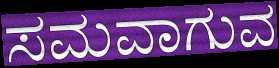
ಸಮವಾಗುವ